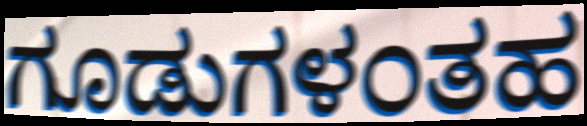
ಗೂಡುಗಳಂತಹ